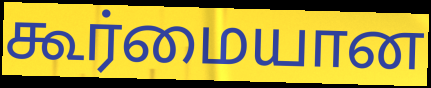
கூர்மையான